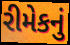
રીમેકનું